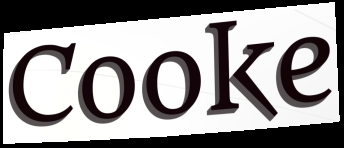
Cooke